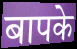
बापके